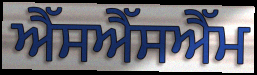
ਐੱਸਐੱਸਐੱਮ